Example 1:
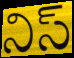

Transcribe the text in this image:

నిస్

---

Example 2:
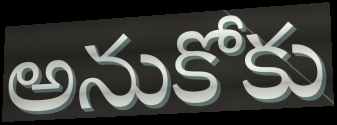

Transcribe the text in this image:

అనుకోకు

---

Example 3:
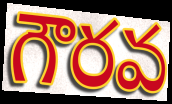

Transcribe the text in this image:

గౌరవ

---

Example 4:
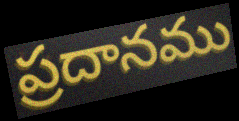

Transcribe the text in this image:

ప్రదానము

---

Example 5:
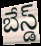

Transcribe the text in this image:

బేస్డ్